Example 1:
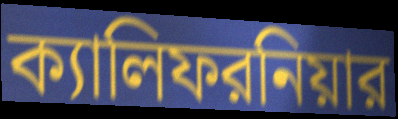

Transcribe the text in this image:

ক্যালিফরনিয়ার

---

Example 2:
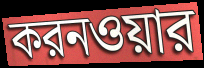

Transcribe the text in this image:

করনওয়ার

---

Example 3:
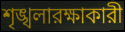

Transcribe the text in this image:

শৃঙ্খলারক্ষাকারী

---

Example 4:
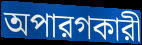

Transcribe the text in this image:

অপারগকারী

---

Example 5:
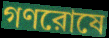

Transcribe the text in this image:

গণরোষে